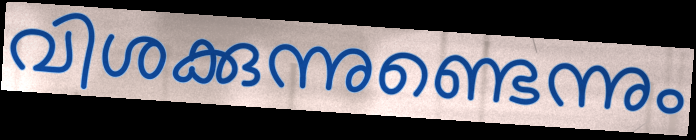
വിശക്കുന്നുണ്ടെന്നും